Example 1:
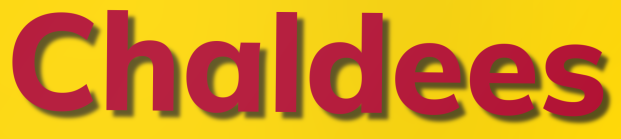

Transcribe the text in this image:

Chaldees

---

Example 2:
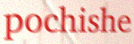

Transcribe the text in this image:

pochishe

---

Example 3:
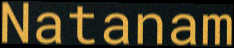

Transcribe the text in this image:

Natanam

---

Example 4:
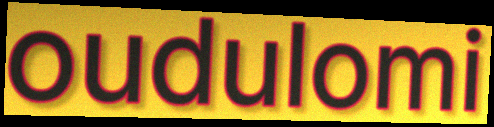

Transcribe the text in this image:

oudulomi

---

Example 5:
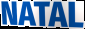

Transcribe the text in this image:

NATAL